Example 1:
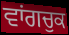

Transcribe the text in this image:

ਵਾਂਗਚੁਕ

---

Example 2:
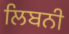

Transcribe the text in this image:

ਲਿਬਨੀ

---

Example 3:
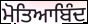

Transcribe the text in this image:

ਮੋਤਿਆਬਿੰਦ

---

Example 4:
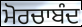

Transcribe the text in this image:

ਮੋਰਚਾਬੰਦ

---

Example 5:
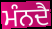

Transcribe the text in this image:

ਮੰਨਦੈ